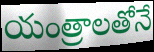
యంత్రాలతోనే